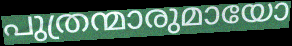
പുത്രന്മാരുമായോ